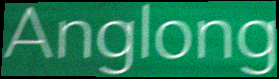
Anglong